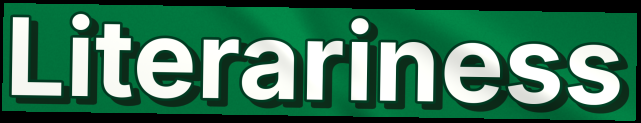
Literariness